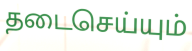
தடைசெய்யும்